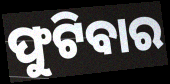
ଫୁଟିବାର